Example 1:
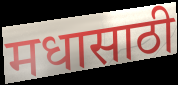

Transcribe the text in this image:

मधासाठी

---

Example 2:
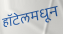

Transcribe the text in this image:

हॉटेलमधून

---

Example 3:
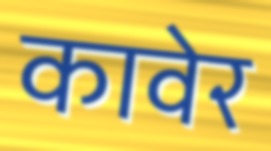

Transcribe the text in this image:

कावेर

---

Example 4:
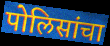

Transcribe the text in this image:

पोलिसांचा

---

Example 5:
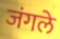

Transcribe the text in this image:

जंगले